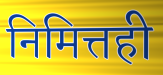
निमित्तही